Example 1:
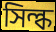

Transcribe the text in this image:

সিল্ক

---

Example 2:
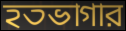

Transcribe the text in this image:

হতভাগার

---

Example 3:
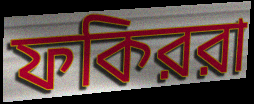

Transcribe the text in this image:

ফকিররা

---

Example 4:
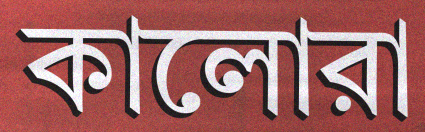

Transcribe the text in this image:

কালোরা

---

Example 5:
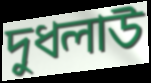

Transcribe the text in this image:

দুধলাউ